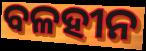
ବଳହୀନ